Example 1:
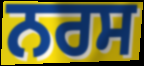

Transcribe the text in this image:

ਨਰਸ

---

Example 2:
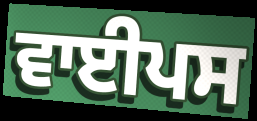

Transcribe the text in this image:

ਵਾਈਪਸ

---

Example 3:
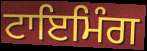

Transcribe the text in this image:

ਟਾਇਮਿੰਗ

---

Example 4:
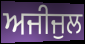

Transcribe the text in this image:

ਅਜੀਜੁਲ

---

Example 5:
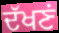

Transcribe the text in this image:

ਦੱਖਣਂ